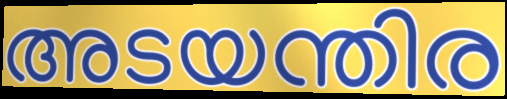
അടയന്തിര